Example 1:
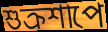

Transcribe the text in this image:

শুক্রশাপে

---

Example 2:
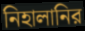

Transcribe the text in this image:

নিহালানির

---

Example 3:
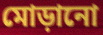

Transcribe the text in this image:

মোড়ানো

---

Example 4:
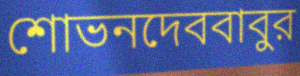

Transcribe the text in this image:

শোভনদেববাবুর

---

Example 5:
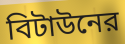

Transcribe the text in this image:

বিটাউনের